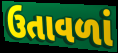
ઉતાવળાં